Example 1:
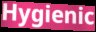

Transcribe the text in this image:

Hygienic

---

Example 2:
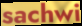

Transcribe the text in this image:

sachwi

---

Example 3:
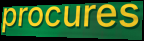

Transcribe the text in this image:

procures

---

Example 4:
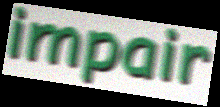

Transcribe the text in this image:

impair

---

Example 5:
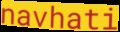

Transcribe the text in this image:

navhati